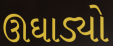
ઊઘાડ્યો